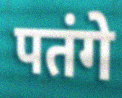
पतंगे